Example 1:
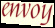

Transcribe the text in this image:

envoy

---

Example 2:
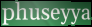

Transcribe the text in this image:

phuseyya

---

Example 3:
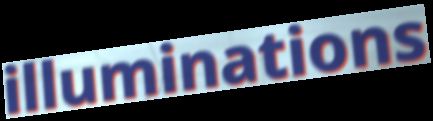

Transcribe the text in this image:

illuminations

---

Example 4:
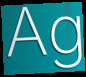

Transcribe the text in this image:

Ag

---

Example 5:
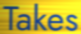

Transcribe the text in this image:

Takes